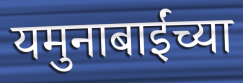
यमुनाबाईंच्या